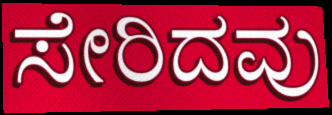
ಸೇರಿದವು